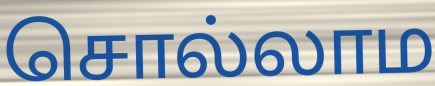
சொல்லாம